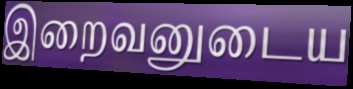
இறைவனுடைய